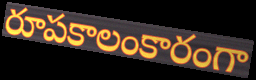
రూపకాలంకారంగా